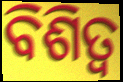
ବିଶିତ୍ଵ